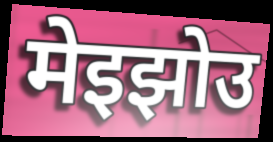
मेइझोउ